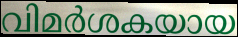
വിമർശകയായ